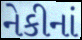
નેકીનાં